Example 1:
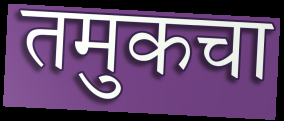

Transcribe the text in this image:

तमुकचा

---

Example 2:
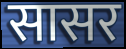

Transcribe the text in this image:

सासर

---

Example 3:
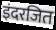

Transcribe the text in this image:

इंदरजित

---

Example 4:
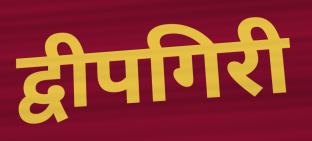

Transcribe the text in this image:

द्वीपगिरी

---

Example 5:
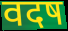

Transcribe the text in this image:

वदष